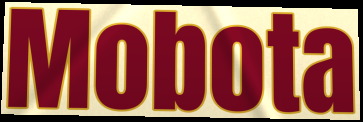
Mobota